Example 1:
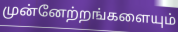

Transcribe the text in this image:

முன்னேற்றங்களையும்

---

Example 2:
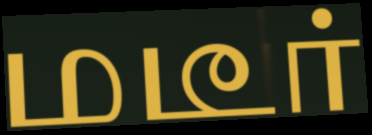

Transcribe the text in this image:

மடீர்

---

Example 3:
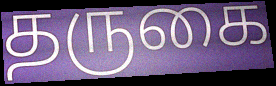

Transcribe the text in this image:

தருகை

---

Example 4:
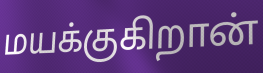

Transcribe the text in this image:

மயக்குகிறான்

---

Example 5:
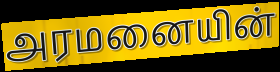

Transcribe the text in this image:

அரமனையின்